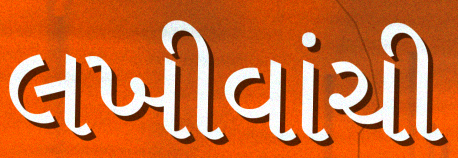
લખીવાંચી